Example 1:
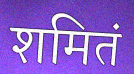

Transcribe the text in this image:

शमितं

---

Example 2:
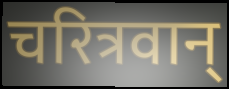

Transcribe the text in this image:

चरित्रवान्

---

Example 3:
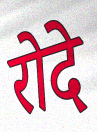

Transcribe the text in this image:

रोदे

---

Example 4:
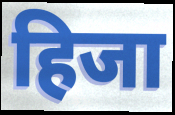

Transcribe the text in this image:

हिजा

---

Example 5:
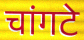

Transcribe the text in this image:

चांगटे